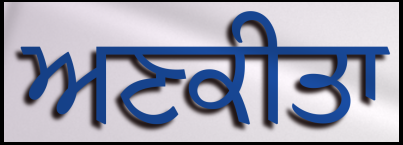
ਅਣਕੀਤਾ